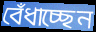
বেঁধাচ্ছেন